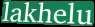
lakhelu